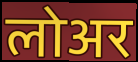
लोअर